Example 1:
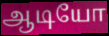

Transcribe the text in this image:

ஆடியோ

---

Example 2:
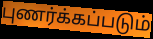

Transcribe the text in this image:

புணர்க்கப்படும்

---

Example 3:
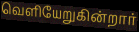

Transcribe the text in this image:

வெளியேறுகின்றார்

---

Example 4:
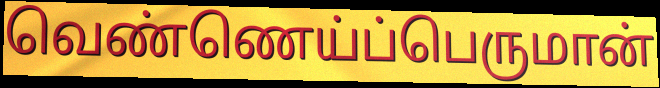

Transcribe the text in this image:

வெண்ணெய்ப்பெருமான்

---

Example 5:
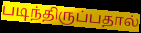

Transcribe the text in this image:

படிந்திருப்பதால்